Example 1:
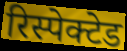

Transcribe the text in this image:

रिस्पेक्टेड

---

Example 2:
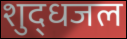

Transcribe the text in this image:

शुद्धजल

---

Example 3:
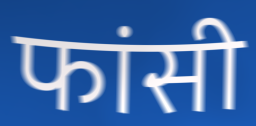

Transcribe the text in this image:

फांसी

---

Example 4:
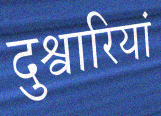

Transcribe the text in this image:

दुश्वारियां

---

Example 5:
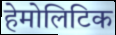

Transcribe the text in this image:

हेमोलिटिक